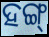
ହଙ୍ଗ୍